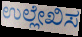
ಉಲ್ಲೇಖಿಸ